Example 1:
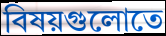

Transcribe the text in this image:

বিষয়গুলোতে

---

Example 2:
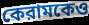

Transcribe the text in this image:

কেরামকেও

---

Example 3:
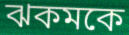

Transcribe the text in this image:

ঝকমকে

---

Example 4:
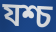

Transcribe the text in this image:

যশ্চ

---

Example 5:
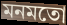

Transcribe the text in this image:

মনমতো